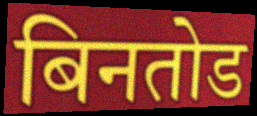
बिनतोड